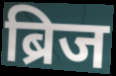
ब्रिज